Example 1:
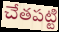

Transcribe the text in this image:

చేతపట్టి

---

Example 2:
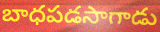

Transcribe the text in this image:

బాధపడసాగాడు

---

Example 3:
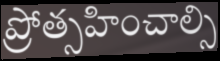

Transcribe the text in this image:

ప్రోత్సహించాల్సి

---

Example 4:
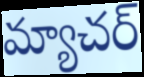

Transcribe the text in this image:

మ్యాచర్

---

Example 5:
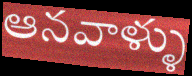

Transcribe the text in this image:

ఆనవాళ్ళు